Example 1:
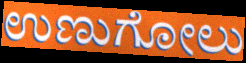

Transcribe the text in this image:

ಉಣುಗೋಲು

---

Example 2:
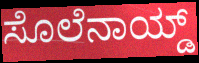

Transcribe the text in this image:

ಸೊಲೆನಾಯ್ಡ್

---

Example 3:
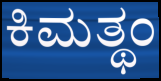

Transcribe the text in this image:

ಕಿಮತ್ಥಂ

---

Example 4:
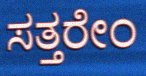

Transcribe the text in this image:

ಸತ್ತರೇಂ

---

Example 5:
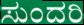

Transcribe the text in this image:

ಸುಂದರಿ